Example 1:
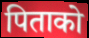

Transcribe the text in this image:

पिताको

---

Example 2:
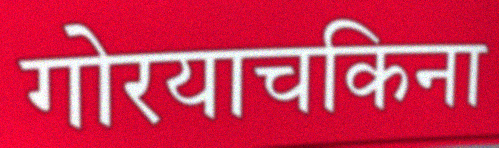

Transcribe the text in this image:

गोरयाचकिना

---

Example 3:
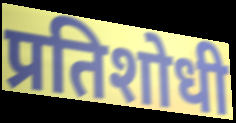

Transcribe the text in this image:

प्रतिशोधी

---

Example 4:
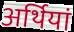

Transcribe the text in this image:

अर्थियां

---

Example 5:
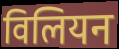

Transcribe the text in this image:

विलियन